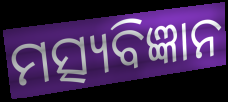
ମତ୍ସ୍ୟବିଜ୍ଞାନ